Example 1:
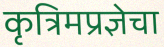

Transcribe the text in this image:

कृत्रिमप्रज्ञेचा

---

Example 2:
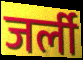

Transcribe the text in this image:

जर्ली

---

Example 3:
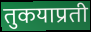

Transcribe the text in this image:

तुकयाप्रती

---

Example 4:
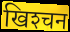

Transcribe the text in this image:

खिश्चन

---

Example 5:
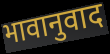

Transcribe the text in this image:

भावानुवाद